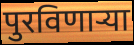
पुरविणार्‍या